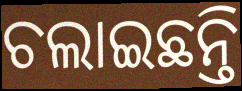
ଚଲାଇଛନ୍ତି